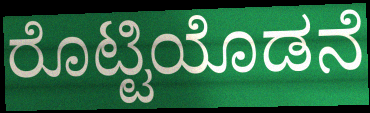
ರೊಟ್ಟಿಯೊಡನೆ